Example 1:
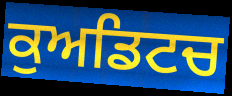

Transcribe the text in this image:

ਕੁਅਡਿਟਚ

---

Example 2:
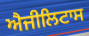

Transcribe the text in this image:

ਐਜੀਲਿਟਾਸ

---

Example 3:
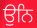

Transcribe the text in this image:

ਉਨਿ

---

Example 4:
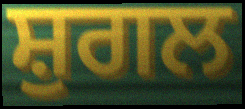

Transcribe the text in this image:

ਸ਼ੁਗਲ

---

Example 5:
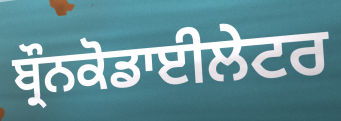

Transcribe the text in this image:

ਬ੍ਰੌਨਕੋਡਾਈਲੇਟਰ